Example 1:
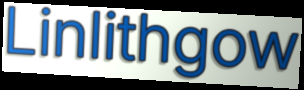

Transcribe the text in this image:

Linlithgow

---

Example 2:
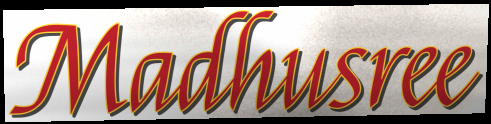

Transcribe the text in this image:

Madhusree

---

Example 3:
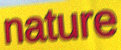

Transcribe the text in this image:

nature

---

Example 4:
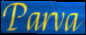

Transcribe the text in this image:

Parva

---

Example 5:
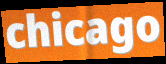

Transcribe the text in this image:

chicago